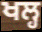
ਖਲ੍ਹ